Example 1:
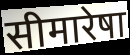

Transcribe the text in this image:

सीमारेषा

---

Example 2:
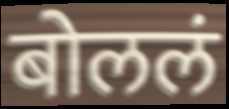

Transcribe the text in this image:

बोललं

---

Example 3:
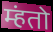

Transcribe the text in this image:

म्हंतो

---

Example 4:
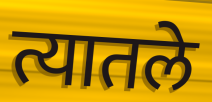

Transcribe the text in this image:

त्यातले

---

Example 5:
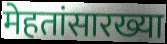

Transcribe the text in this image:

मेहतांसारख्या